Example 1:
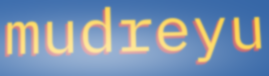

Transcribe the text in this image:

mudreyu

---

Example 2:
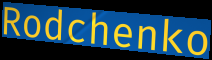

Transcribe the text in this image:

Rodchenko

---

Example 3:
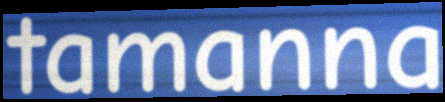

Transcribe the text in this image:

tamanna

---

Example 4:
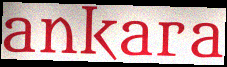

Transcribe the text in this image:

ankara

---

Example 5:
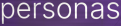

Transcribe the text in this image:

personas